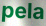
pela